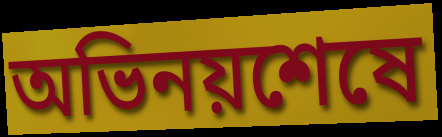
অভিনয়শেষে